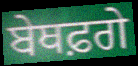
ਬੇਥਫ਼ਗੇ